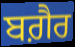
ਬਗ਼ੈਰ